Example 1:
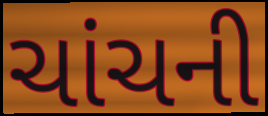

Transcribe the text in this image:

ચાંચની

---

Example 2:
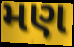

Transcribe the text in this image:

મણ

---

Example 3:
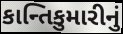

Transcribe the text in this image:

કાન્તિકુમારીનું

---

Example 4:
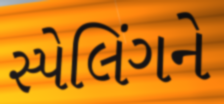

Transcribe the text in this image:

સ્પેલિંગને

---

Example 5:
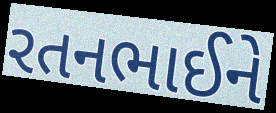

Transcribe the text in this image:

રતનભાઈને